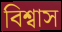
বিশ্বাস